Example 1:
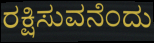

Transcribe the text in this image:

ರಕ್ಷಿಸುವನೆಂದು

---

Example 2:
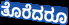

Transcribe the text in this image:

ತೊರೆದರೂ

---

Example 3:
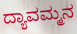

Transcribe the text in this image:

ದ್ಯಾವಮ್ಮನ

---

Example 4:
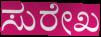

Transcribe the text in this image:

ಸುರೇಖ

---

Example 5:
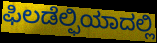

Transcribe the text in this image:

ಫಿಲಡೆಲ್ಫಿಯಾದಲ್ಲಿ